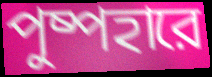
পুষ্পহারে